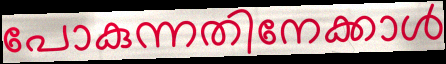
പോകുന്നതിനേക്കാൾ